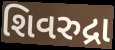
શિવરુદ્રા